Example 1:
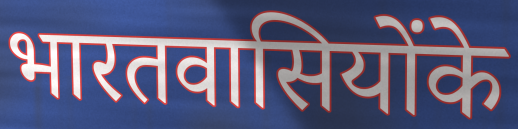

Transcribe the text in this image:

भारतवासियोंके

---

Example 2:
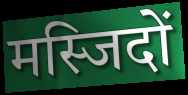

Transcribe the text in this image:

मस्जिदों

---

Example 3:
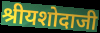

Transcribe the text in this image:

श्रीयशोदाजी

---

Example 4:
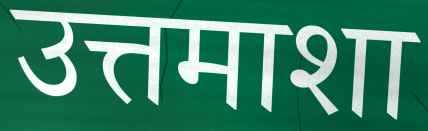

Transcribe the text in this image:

उत्तमाशा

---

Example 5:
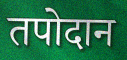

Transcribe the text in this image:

तपोदान